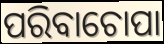
ପରିବାଚୋପା